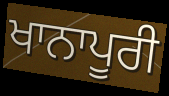
ਖਾਨਾਪੂਰੀ